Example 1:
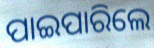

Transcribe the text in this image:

ପାଇପାରିଲେ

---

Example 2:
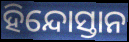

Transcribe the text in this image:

ହିନ୍ଦୋସ୍ତାନ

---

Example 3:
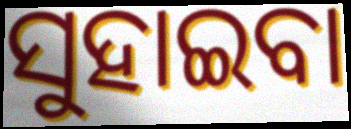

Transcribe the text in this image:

ସୁହାଇବା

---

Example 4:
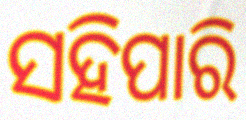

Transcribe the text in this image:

ସହିପାରି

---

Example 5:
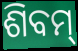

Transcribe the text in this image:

ଶିବମ୍